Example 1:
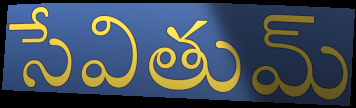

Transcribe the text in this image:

సేవితుమ్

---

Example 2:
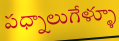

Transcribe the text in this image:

పధ్నాలుగేళ్ళూ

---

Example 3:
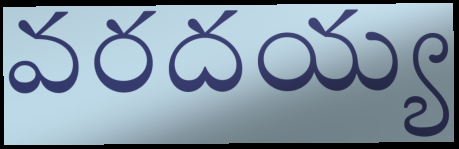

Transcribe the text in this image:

వరదయ్య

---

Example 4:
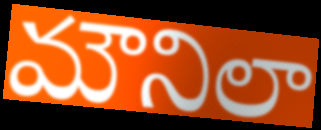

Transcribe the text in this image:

మౌనిలా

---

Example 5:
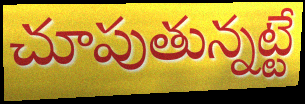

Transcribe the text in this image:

చూపుతున్నట్టే